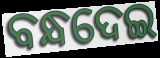
ବନ୍ଧଦେଇ